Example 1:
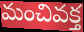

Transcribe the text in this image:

మంచివక్త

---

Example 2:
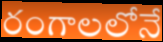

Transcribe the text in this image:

రంగాలలోనే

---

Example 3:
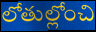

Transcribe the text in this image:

లోతుల్లోంచి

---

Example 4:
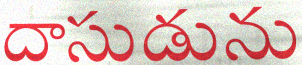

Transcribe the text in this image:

దాసుడును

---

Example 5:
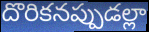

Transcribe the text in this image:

దొరికనప్పుడల్లా